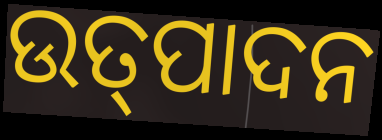
ଉତ୍‌ପାଦନ